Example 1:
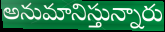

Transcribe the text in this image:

అనుమానిస్తున్నారు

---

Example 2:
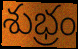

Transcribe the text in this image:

శుభ్రం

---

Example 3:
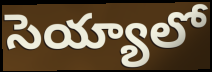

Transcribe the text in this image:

సెయ్యాలో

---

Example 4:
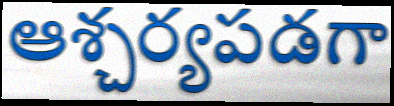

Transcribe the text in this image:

ఆశ్చర్యపడగా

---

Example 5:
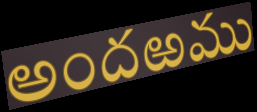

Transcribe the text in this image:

అందఱము